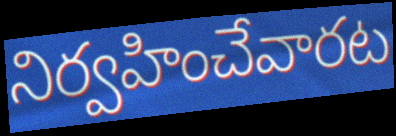
నిర్వహించేవారట